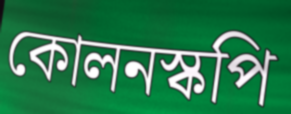
কোলনস্কপি